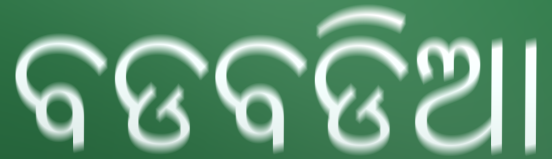
ବଡବଡିଆ